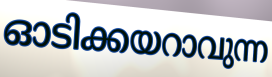
ഓടിക്കയറാവുന്ന